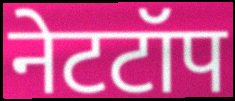
नेटटॉप